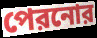
পেরনোর